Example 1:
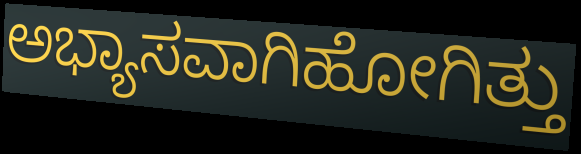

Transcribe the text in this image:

ಅಭ್ಯಾಸವಾಗಿಹೋಗಿತ್ತು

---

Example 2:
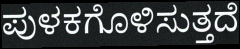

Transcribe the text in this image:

ಪುಳಕಗೊಳಿಸುತ್ತದೆ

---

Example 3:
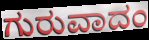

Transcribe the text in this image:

ಗುರುವಾದಂ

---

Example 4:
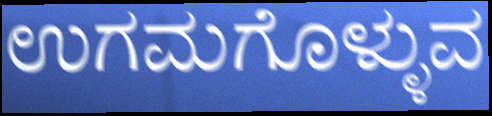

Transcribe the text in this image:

ಉಗಮಗೊಳ್ಳುವ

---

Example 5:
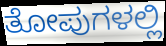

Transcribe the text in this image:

ತೋಪುಗಳಲ್ಲಿ